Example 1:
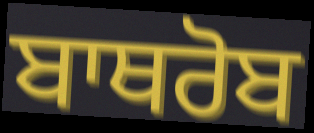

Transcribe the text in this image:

ਬਾਥਰੋਬ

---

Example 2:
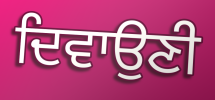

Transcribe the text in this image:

ਦਿਵਾਉਣੀ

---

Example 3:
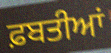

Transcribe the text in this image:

ਫ਼ਬਤੀਆਂ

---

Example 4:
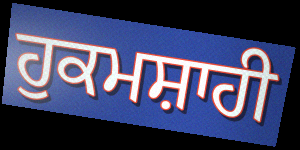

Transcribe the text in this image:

ਹੁਕਮਸ਼ਾਹੀ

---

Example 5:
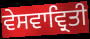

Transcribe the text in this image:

ਵੇਸਵਾਵ੍ਰਿਤੀ